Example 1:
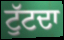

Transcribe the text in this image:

ਟੁੱਟਦਾ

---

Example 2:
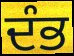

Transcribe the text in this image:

ਦੰਭ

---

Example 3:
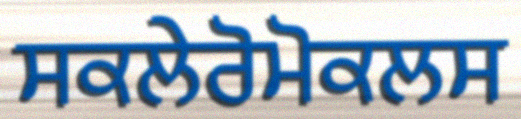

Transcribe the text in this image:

ਸਕਲੇਰੋਮੋਕਲਸ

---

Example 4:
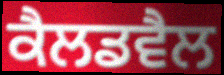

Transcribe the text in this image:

ਕੈਲਡਵੈਲ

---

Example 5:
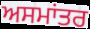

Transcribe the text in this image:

ਅਸਮਾਂਤਰ